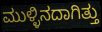
ಮುಳ್ಳಿನದಾಗಿತ್ತು